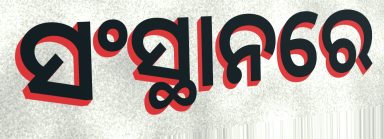
ସଂସ୍ଥାନରେ